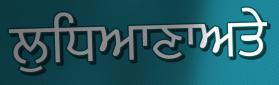
ਲੁਧਿਆਣਾਅਤੇ